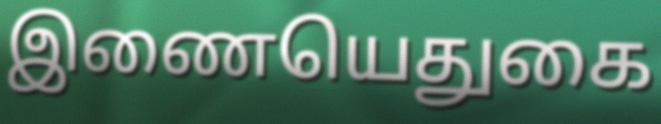
இணையெதுகை